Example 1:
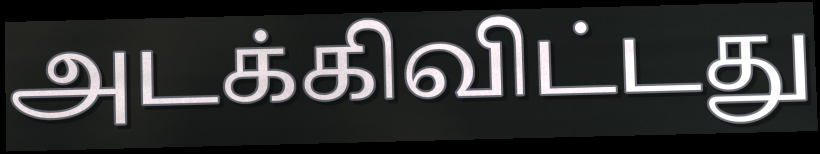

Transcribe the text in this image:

அடக்கிவிட்டது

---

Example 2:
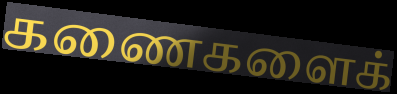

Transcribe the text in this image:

கணைகளைக்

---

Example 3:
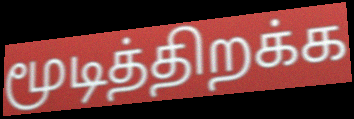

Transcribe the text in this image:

மூடித்திறக்க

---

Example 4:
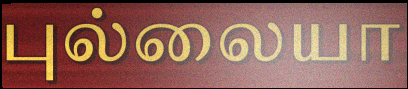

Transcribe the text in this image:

புல்லையா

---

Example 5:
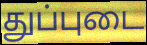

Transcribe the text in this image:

துப்புடை